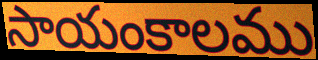
సాయంకాలము